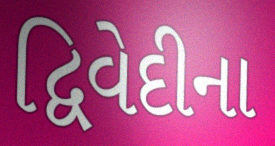
દ્વિવેદીના